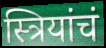
स्त्रियांचं